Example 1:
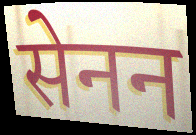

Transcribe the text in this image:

सेनन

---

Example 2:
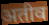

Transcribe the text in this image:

अतीव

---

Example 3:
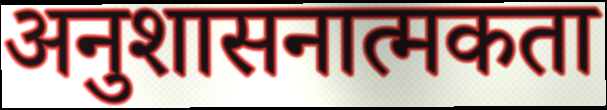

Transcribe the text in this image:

अनुशासनात्मकता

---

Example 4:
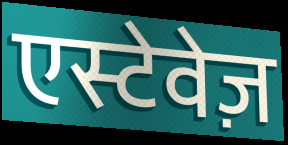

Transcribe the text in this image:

एस्टेवेज़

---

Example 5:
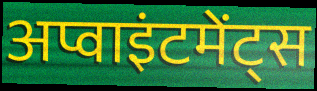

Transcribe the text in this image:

अप्वाइंटमेंट्स